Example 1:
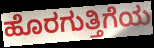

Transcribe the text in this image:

ಹೊರಗುತ್ತಿಗೆಯ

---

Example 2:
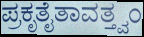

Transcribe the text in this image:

ಪ್ರಕೃತೈತಾವತ್ತ್ವಂ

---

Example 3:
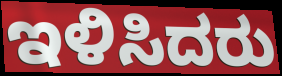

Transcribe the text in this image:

ಇಳಿಸಿದರು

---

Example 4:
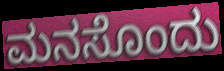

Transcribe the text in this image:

ಮನಸೊಂದು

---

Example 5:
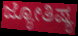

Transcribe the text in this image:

ಜ್ಯೋತಿಷ್ಯ